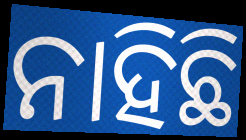
ନାହିଛି